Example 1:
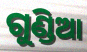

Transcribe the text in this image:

ଗୁଣ୍ଡିଆ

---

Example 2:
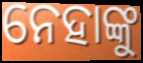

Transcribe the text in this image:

ନେହାଙ୍କୁ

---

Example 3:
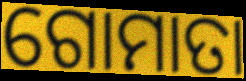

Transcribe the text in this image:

ଗୋମାତା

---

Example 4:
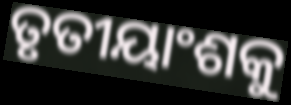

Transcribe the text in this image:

ତୃତୀୟାଂଶକୁ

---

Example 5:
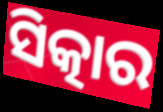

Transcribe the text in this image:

ସିତ୍କାର